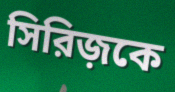
সিরিজ়কে